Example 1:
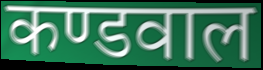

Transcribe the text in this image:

कण्डवाल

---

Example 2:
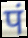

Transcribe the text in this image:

पं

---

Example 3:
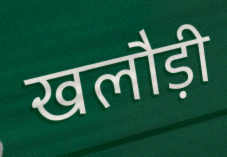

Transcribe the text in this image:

खलौड़ी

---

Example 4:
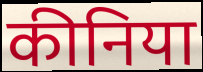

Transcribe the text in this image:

कीनिया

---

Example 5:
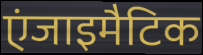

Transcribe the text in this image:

एंजाइमैटिक